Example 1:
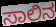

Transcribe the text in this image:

ಸಾಲಿನ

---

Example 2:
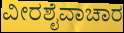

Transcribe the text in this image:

ವೀರಶೈವಾಚಾರ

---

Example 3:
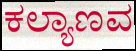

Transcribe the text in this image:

ಕಲ್ಯಾಣವ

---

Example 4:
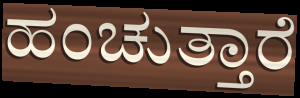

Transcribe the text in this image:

ಹಂಚುತ್ತಾರೆ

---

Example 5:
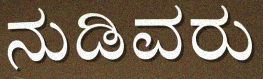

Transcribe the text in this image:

ನುಡಿವರು